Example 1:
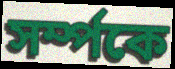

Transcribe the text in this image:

সৰ্ম্পকে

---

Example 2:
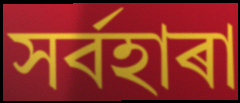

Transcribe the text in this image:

সৰ্বহাৰা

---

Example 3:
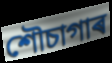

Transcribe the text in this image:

শৌচাগাৰ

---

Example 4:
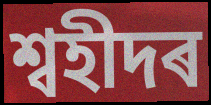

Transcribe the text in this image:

শ্বহীদৰ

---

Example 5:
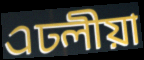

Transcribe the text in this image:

এঢলীয়া